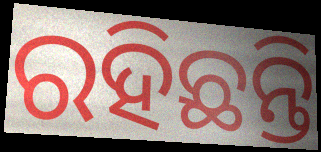
ରହିଛନ୍ତି